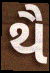
થૈ